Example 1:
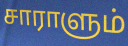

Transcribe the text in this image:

சாராளும்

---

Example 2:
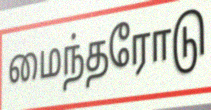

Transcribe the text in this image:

மைந்தரோடு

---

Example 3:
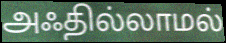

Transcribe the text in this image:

அஃதில்லாமல்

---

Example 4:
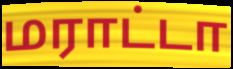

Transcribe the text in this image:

மராட்டா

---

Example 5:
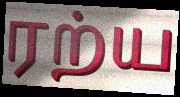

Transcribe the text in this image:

ரற்ய